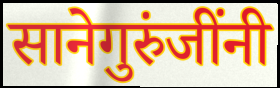
सानेगुरुंजींनी